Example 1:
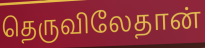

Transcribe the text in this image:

தெருவிலேதான்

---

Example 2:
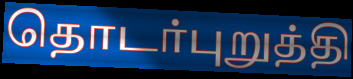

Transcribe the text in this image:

தொடர்புறுத்தி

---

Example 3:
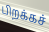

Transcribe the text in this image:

பிறக்கச்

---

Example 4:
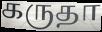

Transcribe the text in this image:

கருதா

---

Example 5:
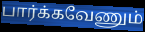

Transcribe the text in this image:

பார்க்கவேணும்